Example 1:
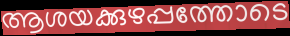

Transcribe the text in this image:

ആശയക്കുഴപ്പത്തോടെ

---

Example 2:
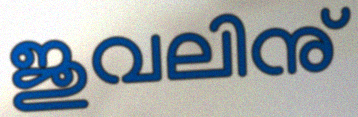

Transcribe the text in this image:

ജുവലിനു്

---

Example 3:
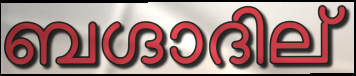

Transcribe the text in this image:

ബഗ്ദാദില്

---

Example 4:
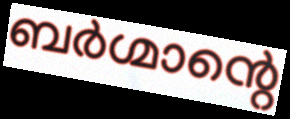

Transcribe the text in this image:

ബർഗ്മാന്റെ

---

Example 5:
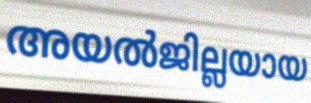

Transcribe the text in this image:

അയൽജില്ലയായ